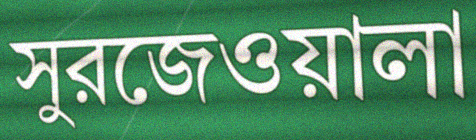
সুরজেওয়ালা